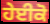
ਹੇਈਕੋ